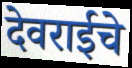
देवराईचे